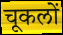
चूकलों